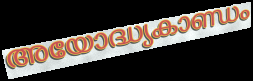
അയോദ്ധ്യകാണ്ഡം